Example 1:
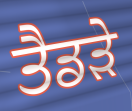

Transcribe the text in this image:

ਤੈਡੜੇ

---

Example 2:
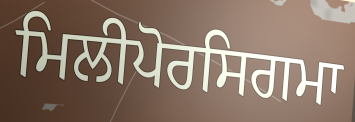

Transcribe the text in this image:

ਮਿਲੀਪੋਰਸਿਗਮਾ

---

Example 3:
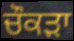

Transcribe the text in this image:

ਚੌਕੜਾ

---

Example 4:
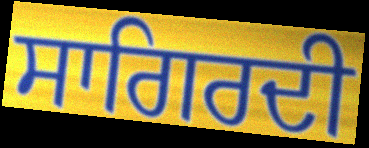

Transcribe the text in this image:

ਸਾਗਿਰਦੀ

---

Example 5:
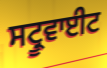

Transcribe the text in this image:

ਸਟ੍ਰੂਵਾਈਟ